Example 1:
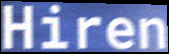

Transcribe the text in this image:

Hiren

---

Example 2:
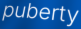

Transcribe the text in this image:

puberty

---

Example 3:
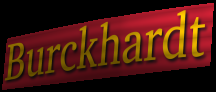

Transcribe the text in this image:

Burckhardt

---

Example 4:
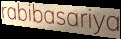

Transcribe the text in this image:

rabibasariya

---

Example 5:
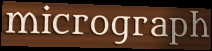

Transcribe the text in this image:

micrograph